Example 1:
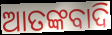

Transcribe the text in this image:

ଆତଙ୍କବାଦି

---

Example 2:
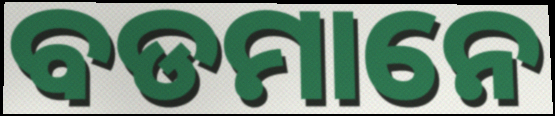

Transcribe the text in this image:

ବଡମାନେ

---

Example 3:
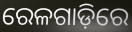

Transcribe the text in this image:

ରେଳଗାଡ଼ିରେ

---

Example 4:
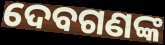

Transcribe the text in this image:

ଦେବଗଣଙ୍କ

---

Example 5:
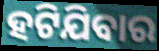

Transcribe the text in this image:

ହଟିଯିବାର